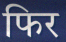
फिर